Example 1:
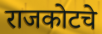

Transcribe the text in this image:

राजकोटचे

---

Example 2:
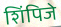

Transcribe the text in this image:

शिंपिजे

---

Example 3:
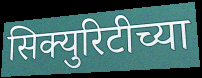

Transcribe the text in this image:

सिक्युरिटीच्या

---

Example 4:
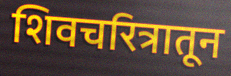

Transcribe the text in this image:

शिवचरित्रातून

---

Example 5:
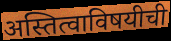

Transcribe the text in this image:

अस्तित्वाविषयीची